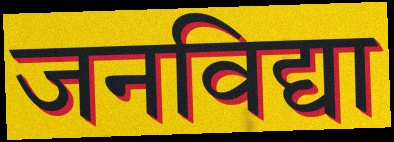
जनविद्या